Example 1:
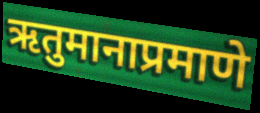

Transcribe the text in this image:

ऋतुमानाप्रमाणे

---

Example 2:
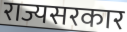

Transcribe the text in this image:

राज्यसरकार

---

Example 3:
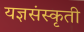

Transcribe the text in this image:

यज्ञसंस्कृती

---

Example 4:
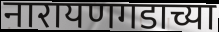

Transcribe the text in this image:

नारायणगडाच्या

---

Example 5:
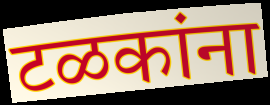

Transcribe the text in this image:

टळकांना